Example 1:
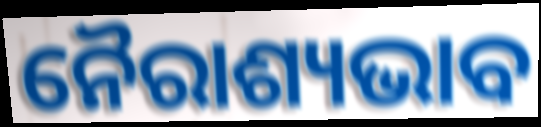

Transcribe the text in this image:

ନୈରାଶ୍ୟଭାବ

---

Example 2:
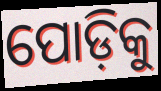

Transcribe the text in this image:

ପୋଡ଼ିକୁ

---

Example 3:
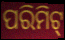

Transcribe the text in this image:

ପରିମିଟ୍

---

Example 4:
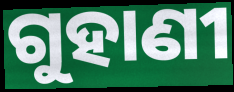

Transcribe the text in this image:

ଗୁହାଣୀ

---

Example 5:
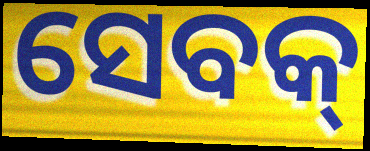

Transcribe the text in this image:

ସେବକ୍